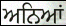
ਅਨਿਆਂ